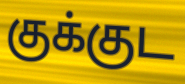
குக்குட